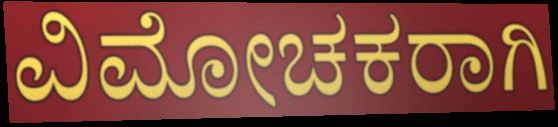
ವಿಮೋಚಕರಾಗಿ